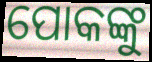
ପୋକଙ୍କୁ